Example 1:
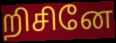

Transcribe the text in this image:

றிசினே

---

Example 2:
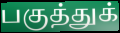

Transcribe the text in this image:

பகுத்துக்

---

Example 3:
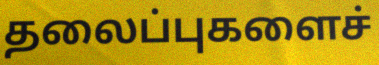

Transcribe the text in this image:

தலைப்புகளைச்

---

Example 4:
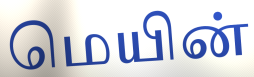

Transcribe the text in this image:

மெயின்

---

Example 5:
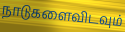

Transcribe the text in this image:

நாடுகளைவிடவும்